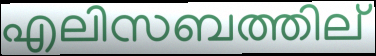
എലിസബത്തില്